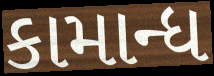
કામાન્ધ